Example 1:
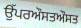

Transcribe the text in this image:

ਉੱਪਰਔਸਤਔਸਤ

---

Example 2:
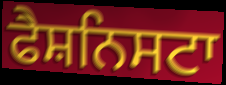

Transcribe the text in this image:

ਫੈਸ਼ਨਿਸਟਾ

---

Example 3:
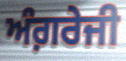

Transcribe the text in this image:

ਅੰਗ਼ਰੇਜੀ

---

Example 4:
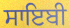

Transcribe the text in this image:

ਸਾਇਬੀ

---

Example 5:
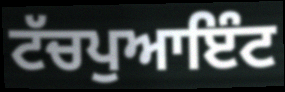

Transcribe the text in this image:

ਟੱਚਪੁਆਇੰਟ